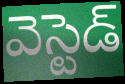
వెస్టెడ్